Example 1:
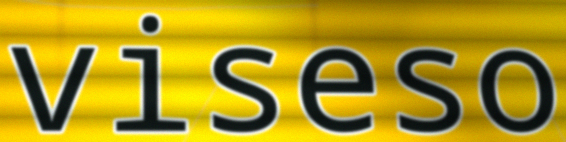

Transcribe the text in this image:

viseso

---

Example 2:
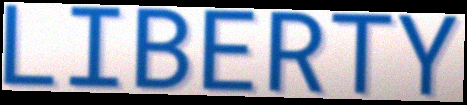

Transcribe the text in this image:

LIBERTY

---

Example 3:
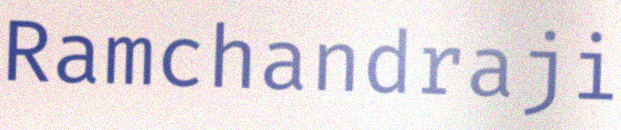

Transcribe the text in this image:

Ramchandraji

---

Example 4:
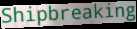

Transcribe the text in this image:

Shipbreaking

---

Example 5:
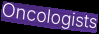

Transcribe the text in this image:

Oncologists